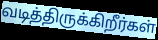
வடித்திருக்கிறீர்கள்